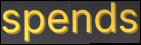
spends